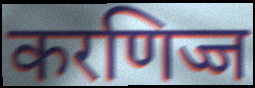
करणिज्ज